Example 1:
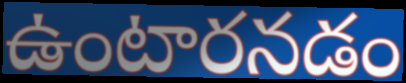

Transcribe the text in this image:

ఉంటారనడం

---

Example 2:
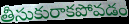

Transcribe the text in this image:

తీసుకురాకపోవడం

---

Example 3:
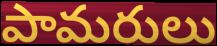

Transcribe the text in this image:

పామరులు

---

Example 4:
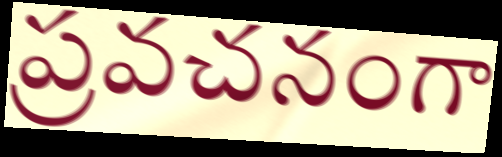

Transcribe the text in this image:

ప్రవచనంగా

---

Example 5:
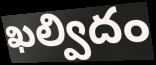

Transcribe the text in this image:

ఖల్విదం